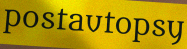
postautopsy